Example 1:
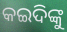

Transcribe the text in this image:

କଇଦିଙ୍କୁ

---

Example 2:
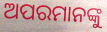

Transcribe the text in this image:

ଅପରମାନଙ୍କୁ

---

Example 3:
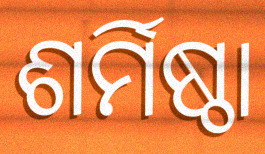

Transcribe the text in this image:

ଶର୍ମିଷ୍ଠା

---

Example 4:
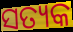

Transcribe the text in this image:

ସତ୍ୟକ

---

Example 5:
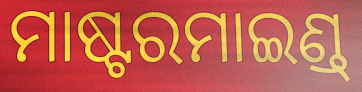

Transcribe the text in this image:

ମାଷ୍ଟରମାଇଣ୍ଡ୍